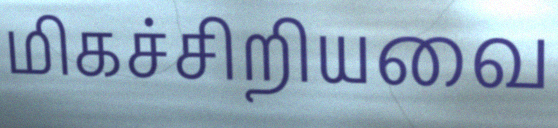
மிகச்சிறியவை